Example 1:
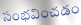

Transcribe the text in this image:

సంభవించడం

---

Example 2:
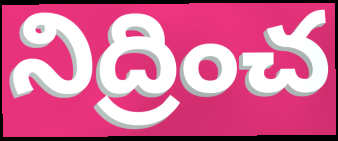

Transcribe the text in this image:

నిద్రించ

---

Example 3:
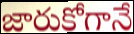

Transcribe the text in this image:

జారుకోగానే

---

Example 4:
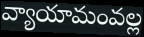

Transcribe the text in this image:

వ్యాయామంవల్ల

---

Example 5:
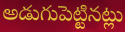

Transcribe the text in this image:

అడుగుపెట్టినట్లు